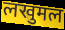
लखुमल